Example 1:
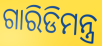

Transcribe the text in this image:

ଗାରିଡିମନ୍ତ୍ର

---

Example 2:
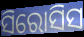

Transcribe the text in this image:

ସିରୋସିସ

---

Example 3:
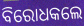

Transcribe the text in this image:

ବିରୋଧକଲେ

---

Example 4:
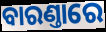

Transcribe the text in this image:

ବାରଣ୍ତାରେ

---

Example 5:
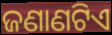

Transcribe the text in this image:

ଜଣାଣଟିଏ